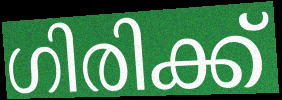
ഗിരിക്ക്